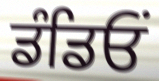
ਡੰਡਿਓਂ